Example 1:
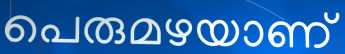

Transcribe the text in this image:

പെരുമഴയാണ്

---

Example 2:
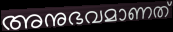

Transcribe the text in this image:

അനുഭവമാണത്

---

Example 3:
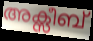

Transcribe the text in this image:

അക്സീബ്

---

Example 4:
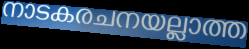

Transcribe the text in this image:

നാടകരചനയല്ലാത്ത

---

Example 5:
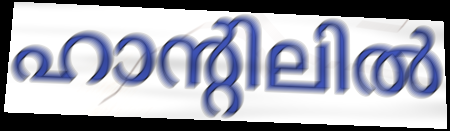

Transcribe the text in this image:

ഹാന്റിലിൽ